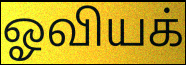
ஓவியக்